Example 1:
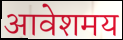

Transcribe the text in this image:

आवेशमय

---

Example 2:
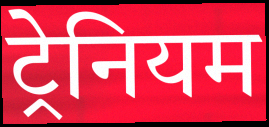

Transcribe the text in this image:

ट्रेनियम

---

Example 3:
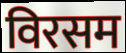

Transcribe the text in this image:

विरसम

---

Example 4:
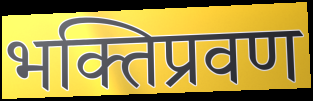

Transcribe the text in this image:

भक्तिप्रवण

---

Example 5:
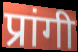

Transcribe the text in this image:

प्रांगी